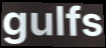
gulfs